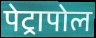
पेट्रापोल